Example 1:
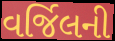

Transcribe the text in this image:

વર્જિલની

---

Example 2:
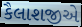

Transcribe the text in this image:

કૈલાશજીએ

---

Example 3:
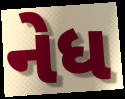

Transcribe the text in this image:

નેધ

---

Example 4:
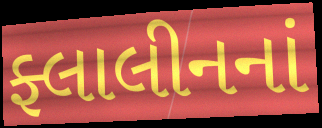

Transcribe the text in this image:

ફ્લાલીનનાં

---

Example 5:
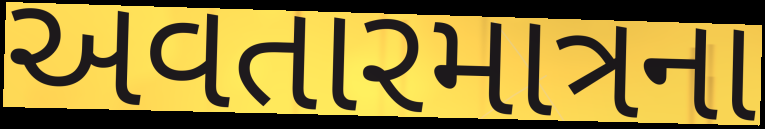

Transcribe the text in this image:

અવતારમાત્રના